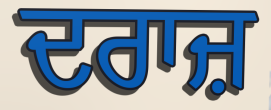
ਦਰਾਜ਼